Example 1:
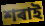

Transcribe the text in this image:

শৰাই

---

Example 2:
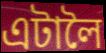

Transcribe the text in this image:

এটালৈ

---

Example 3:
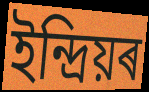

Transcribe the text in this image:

ইন্দ্ৰিয়ৰ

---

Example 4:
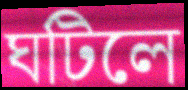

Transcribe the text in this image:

ঘটিলে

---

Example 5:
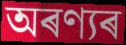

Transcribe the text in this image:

অৰণ্যৰ